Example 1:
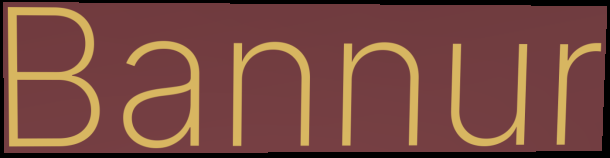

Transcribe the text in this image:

Bannur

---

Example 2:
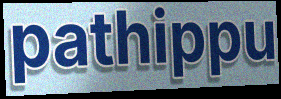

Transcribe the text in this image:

pathippu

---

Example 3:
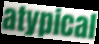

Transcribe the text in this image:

atypical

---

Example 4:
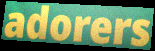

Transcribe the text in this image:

adorers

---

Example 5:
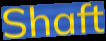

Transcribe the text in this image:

Shaft